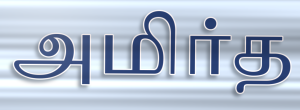
அமிர்த